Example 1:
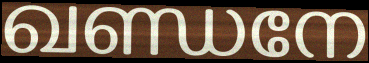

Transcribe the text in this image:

ഖണ്ഡനേ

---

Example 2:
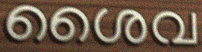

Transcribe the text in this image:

ശൈവ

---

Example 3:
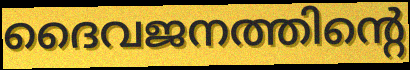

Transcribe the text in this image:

ദൈവജനത്തിന്റെ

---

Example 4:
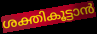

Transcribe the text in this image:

ശക്തികൂട്ടാൻ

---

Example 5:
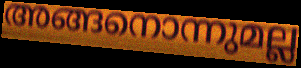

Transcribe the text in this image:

അങ്ങനൊന്നുമല്ല